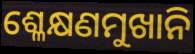
ଶ୍ଳେକ୍ଷଣମୁଖାନି